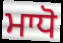
ਮਾਧੋ